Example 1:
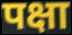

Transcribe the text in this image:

पक्षा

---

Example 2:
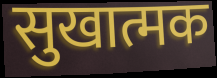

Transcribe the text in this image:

सुखात्मक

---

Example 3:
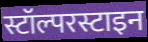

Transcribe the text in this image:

स्टॉल्परस्टाइन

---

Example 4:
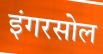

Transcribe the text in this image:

इंगरसोल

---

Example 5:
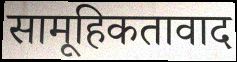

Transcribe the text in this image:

सामूहिकतावाद